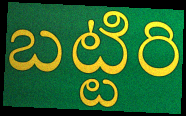
బట్టిరి